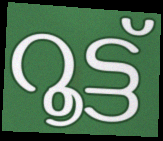
റൂട്ട്